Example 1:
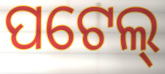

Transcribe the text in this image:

ପଟେଲ୍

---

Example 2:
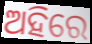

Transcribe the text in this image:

ଅହିରେ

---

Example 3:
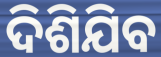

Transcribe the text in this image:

ଦିଶିଯିବ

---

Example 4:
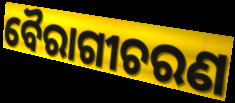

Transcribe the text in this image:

ବୈରାଗୀଚରଣ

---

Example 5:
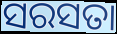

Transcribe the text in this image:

ସରସତା